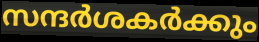
സന്ദർശകർക്കും